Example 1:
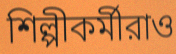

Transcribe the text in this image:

শিল্পীকর্মীরাও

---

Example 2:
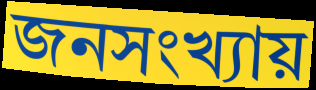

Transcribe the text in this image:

জনসংখ্যায়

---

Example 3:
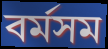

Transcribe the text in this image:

বর্মসম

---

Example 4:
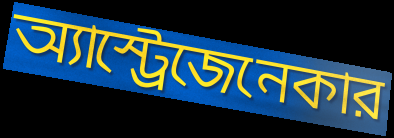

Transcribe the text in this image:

অ্যাস্ট্রেজেনেকার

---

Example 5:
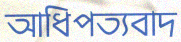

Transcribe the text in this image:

আধিপত্যবাদ